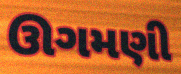
ઊગમણી